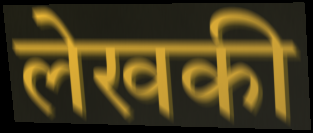
लेखकी